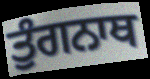
ਤੁੰਗਨਾਥ